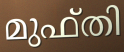
മുഫ്തി